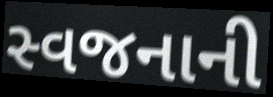
સ્વજનાની